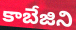
కాబేజిని